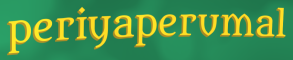
periyaperumal